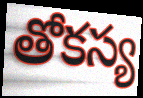
తోకస్య